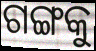
ଗଙ୍ଗକୁ